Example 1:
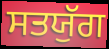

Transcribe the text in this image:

ਸਤਯੁੱਗ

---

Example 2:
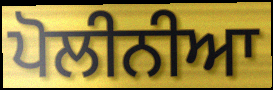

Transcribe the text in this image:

ਪੋਲੀਨੀਆ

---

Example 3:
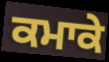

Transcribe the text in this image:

ਕਮਾਕੇ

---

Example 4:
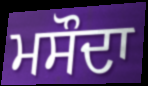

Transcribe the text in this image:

ਮਸੌਦਾ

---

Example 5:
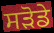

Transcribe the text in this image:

ਸੜੋਡੇ